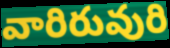
వారిరువురి